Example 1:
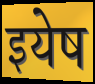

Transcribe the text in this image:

इयेष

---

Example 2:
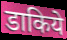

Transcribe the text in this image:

डाकिये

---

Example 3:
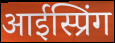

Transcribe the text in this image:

आईस्प्रिंग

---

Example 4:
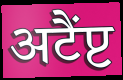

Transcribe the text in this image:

अटैंप्ट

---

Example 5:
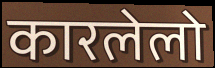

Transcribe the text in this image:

कारलेलो